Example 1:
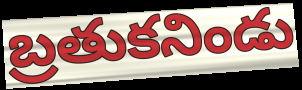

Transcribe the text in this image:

బ్రతుకనిండు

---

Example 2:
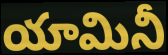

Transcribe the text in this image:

యామినీ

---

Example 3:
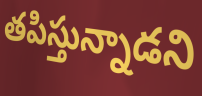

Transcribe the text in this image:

తపిస్తున్నాడని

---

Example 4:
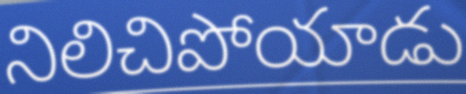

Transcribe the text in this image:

నిలిచిపోయాడు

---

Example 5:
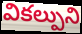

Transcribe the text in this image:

వికల్పుని